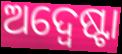
ଅଦ୍ୱେଷ୍ଟା